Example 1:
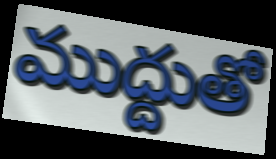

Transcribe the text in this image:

ముద్దుతో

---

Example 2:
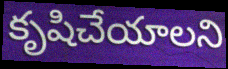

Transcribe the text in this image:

కృషిచేయాలని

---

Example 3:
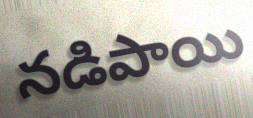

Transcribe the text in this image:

నడిపాయి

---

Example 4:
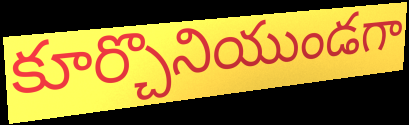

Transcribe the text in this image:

కూర్చొనియుండగా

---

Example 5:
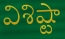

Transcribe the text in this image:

విశిష్టా